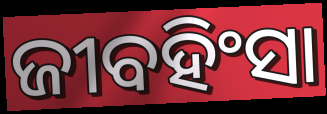
ଜୀବହିଂସା